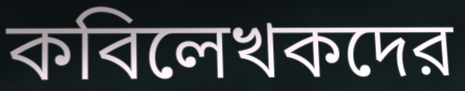
কবিলেখকদের